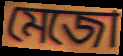
মেজো